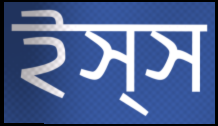
ইস্‌স